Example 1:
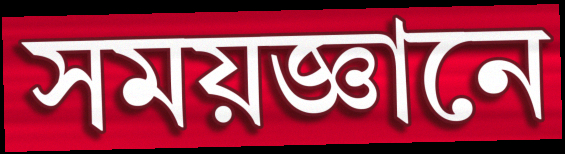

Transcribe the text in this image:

সময়জ্ঞানে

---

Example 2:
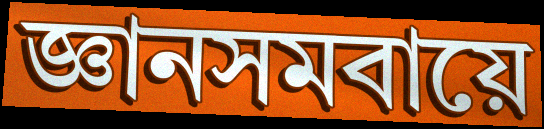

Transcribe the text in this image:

জ্ঞানসমবায়ে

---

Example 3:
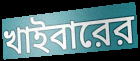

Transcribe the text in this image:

খাইবারের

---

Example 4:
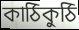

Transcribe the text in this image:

কাঠিকুঠি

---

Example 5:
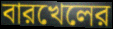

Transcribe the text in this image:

বারখেলের